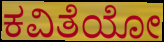
ಕವಿತೆಯೋ